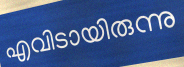
എവിടായിരുന്നു